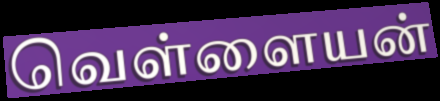
வெள்ளையன்